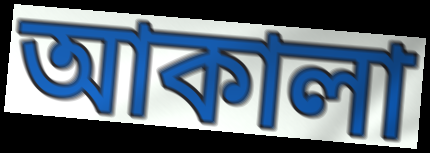
আকালা